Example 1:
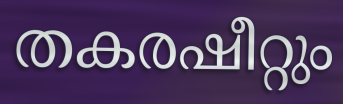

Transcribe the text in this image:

തകരഷീറ്റും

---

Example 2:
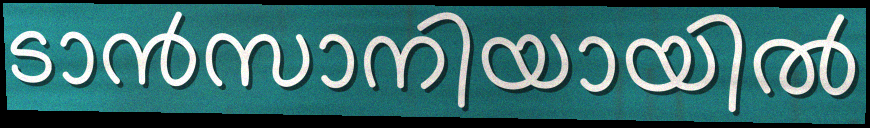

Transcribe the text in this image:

ടാൻസാനിയായിൽ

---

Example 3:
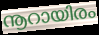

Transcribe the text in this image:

നൂറായിരം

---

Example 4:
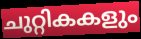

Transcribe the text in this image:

ചുറ്റികകളും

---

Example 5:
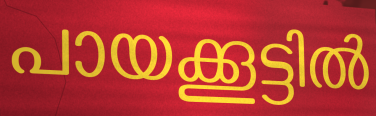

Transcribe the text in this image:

പായക്കൂട്ടിൽ